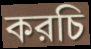
করচি